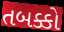
તબક્કો